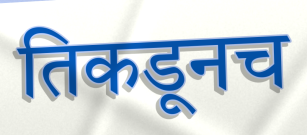
तिकडूनच